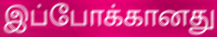
இப்போக்கானது